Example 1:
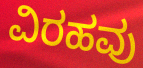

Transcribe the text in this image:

ವಿರಹವು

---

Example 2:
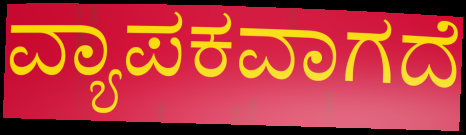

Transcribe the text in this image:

ವ್ಯಾಪಕವಾಗದೆ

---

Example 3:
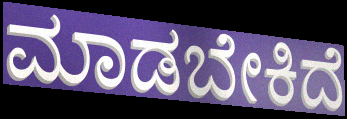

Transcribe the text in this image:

ಮಾಡಬೇಕಿದೆ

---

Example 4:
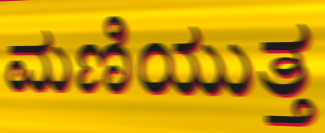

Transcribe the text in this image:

ಮಣಿಯುತ್ತ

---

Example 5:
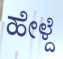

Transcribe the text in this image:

ಹೇಳ್ದೆ